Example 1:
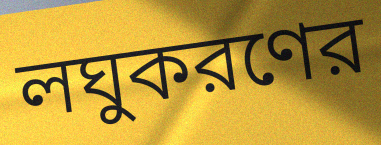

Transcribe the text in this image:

লঘুকরণের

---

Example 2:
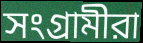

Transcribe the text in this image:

সংগ্রামীরা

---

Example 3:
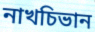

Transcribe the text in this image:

নাখচিভান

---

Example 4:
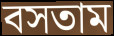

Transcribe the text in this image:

বসতাম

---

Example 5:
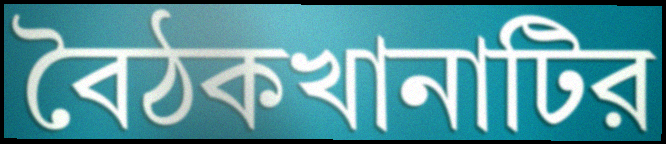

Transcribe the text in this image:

বৈঠকখানাটির